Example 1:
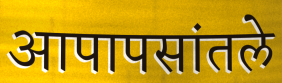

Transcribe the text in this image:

आपापसांतले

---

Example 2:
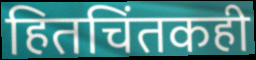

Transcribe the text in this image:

हितचिंतकही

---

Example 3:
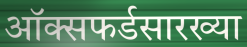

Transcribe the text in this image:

ऑक्सफर्डसारख्या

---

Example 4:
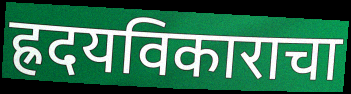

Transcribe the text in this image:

ह्रदयविकाराचा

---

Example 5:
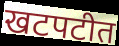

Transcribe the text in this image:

खटपटीत